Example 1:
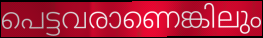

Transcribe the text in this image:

പെട്ടവരാണെങ്കിലും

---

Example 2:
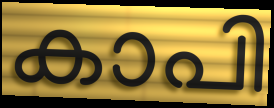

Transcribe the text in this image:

കാപി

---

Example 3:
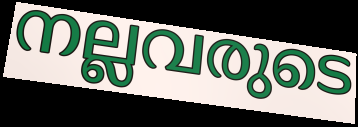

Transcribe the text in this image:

നല്ലവരുടെ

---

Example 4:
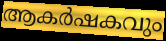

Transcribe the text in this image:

ആകർഷകവും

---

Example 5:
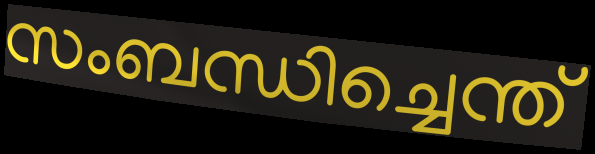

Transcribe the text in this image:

സംബന്ധിച്ചെന്ത്